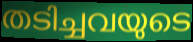
തടിച്ചവയുടെ